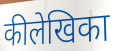
कीलेखिका